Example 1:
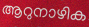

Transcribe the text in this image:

ആറുനാഴിക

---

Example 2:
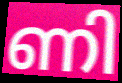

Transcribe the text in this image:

ണി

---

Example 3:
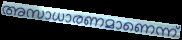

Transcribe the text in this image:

അസാധാരണമാണെന്ന്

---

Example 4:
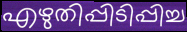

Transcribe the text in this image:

എഴുതിപ്പിടിപ്പിച്ച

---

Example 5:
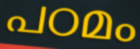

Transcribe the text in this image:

പഠമം